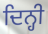
ਦਿਨ੍ਹੀ